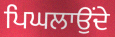
ਪਿਘਲਾਉਂਦੇ